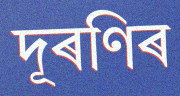
দূৰণিৰ